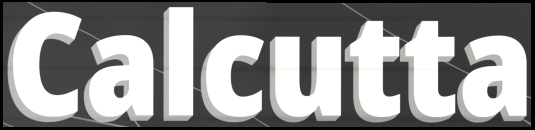
Calcutta